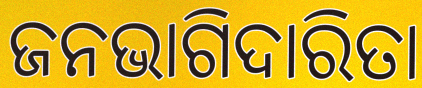
ଜନଭାଗିଦାରିତା